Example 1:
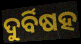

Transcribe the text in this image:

ଦୁର୍ବିଷହ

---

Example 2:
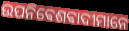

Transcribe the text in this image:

ଉପନିଵେଶଵାଦୀମାନେ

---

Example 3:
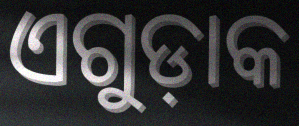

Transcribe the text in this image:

ଏଗୁଡ଼ାକ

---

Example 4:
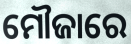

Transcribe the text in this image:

ମୌଜାରେ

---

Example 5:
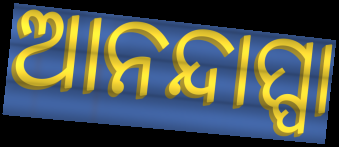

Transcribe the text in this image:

ଆନନ୍ଦାପ୍ପା